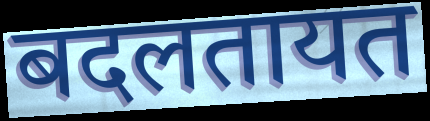
बदलतायत